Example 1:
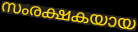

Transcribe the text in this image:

സംരക്ഷകയായ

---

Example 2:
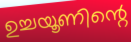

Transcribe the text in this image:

ഉച്ചയൂണിന്റെ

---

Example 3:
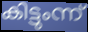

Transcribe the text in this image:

കിട്ടുംന്ന്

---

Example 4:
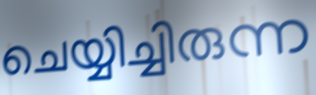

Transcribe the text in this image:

ചെയ്യിച്ചിരുന്ന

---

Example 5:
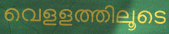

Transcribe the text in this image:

വെളളത്തിലൂടെ